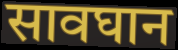
सावघान